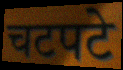
चटपटे